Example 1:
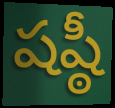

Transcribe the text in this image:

షష్ఠీ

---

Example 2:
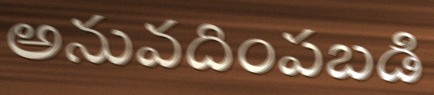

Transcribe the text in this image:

అనువదింపబడి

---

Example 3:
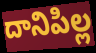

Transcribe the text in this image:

దానిపిల్ల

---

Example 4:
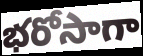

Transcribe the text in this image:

భరోసాగా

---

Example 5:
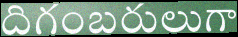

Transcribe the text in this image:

దిగంబరులుగా